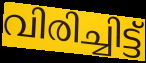
വിരിച്ചിട്ട്